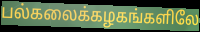
பல்கலைக்கழகங்களிலே